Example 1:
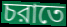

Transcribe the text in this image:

চরাতে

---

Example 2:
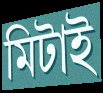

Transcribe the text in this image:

মিটাই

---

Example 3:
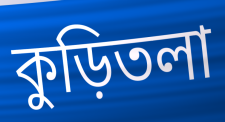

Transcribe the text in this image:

কুড়িতলা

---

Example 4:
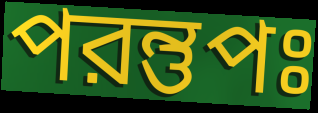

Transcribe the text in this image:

পরন্তুপঃ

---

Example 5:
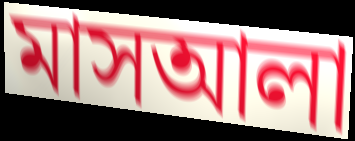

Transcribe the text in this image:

মাসআলা